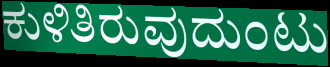
ಕುಳಿತಿರುವುದುಂಟು